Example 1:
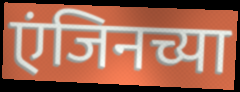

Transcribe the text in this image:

एंजिनच्या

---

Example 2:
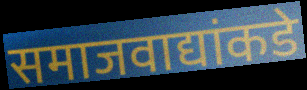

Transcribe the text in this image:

समाजवाद्यांकडे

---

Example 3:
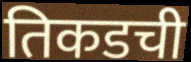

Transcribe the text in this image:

तिकडची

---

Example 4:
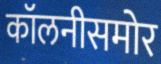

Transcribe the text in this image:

कॉलनीसमोर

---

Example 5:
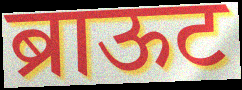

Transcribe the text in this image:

ब्राऊट